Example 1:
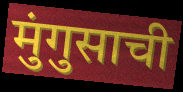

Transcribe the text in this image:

मुंगुसाची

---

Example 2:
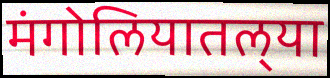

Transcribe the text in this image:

मंगोलियातल्या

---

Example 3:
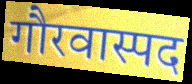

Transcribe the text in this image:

गौरवास्पद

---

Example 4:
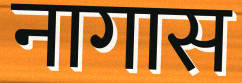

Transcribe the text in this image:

नागास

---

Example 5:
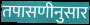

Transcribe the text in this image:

तपासणीनुसार